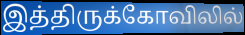
இத்திருக்கோவிலில்